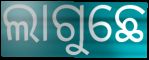
ଲାଗୁଛେ